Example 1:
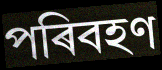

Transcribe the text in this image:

পৰিবহণ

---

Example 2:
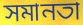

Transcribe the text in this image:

সমানতা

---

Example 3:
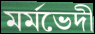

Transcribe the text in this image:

মৰ্মভেদী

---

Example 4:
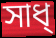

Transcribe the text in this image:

সাধ্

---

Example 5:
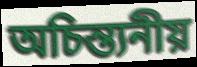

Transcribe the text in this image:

অচিন্ত্যনীয়